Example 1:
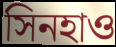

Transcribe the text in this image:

সিনহাও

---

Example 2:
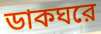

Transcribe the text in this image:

ডাকঘরে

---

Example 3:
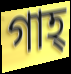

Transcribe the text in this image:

গাহ্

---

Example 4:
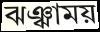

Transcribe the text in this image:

ঝঞ্ঝাময়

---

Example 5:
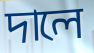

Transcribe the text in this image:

দালে